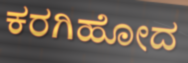
ಕರಗಿಹೋದ